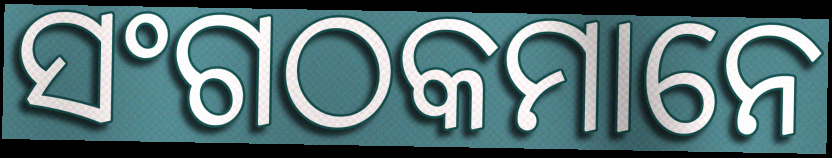
ସଂଗଠକମାନେ